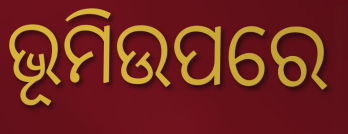
ଭୂମିଉପରେ